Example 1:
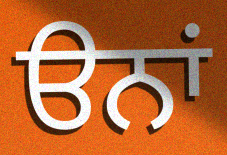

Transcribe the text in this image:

ੳਨਾਂ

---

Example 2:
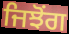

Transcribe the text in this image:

ਜਿਝੋਂਗ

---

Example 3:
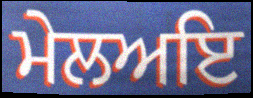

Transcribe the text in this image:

ਮੇਲਅਇ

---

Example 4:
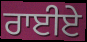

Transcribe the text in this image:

ਰਾਈਏ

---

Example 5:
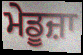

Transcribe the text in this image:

ਮੇਡੂਜ਼ਾ